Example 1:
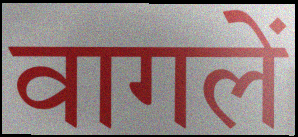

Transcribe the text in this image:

वागलें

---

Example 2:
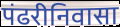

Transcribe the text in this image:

पंढरीनिवासा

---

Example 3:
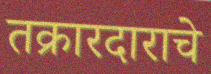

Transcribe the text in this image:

तक्रारदाराचे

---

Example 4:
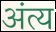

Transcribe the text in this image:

अंत्य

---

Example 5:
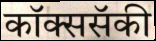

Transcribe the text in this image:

कॉक्ससॅकी